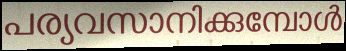
പര്യവസാനിക്കുമ്പോൾ